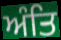
ਅੰਤਿ